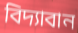
বিদ্যাবান